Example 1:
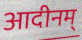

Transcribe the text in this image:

आदीनम्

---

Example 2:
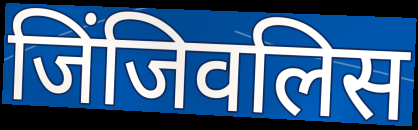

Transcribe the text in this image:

जिंजिवलिस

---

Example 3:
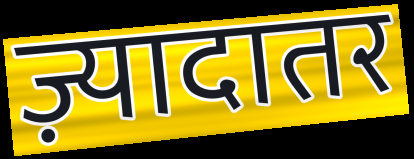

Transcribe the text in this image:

ज़्यादातर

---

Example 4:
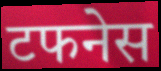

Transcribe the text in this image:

टफनेस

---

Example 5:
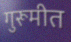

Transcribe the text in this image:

गुरूमीत